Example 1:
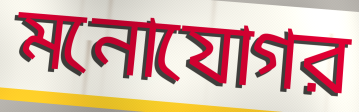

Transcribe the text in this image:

মনোযোগর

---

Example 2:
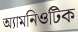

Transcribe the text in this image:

অ্যামনিওটিক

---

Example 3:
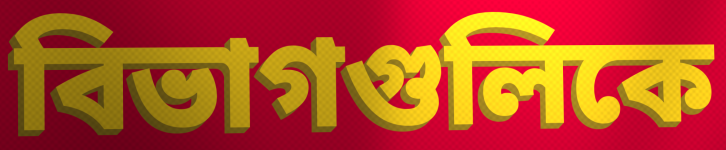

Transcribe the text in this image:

বিভাগগুলিকে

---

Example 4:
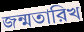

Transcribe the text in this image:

জন্মতারিখ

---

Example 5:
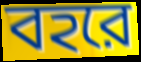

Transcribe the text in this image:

বহরে